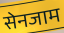
सेनजाम